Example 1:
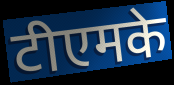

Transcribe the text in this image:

टीएमके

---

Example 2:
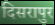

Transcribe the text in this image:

दिसरापुर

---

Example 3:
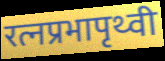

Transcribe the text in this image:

रत्नप्रभापृथ्वी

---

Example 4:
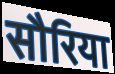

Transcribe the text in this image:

सौरिया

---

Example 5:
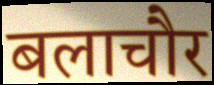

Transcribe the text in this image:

बलाचौर